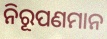
ନିରୂପଣମାନ